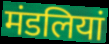
मंडलियां